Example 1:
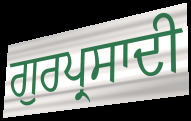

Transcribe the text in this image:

ਗੁਰਪ੍ਰਸਾਦੀ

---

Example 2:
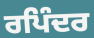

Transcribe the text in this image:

ਰਪਿੰਦਰ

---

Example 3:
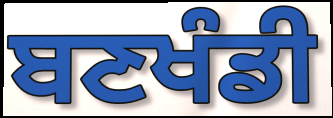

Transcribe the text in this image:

ਬਣਖੰਡੀ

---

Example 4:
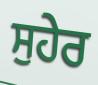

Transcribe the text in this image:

ਸੁਹੇਰ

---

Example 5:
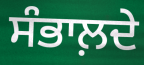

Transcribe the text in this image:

ਸੰਭਾਲ਼ਦੇ